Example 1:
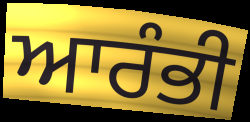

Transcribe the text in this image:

ਆਰੰਭੀ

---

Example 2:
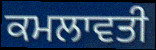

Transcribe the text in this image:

ਕਮਲਾਵਤੀ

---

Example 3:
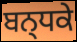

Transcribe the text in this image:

ਬਨ੍ਧਕੇ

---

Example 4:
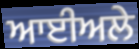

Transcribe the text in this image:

ਆਈਅਲੇ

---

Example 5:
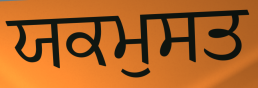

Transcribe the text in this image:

ਯਕਮੁਸਤ